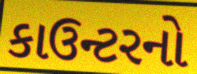
કાઉન્ટરનો